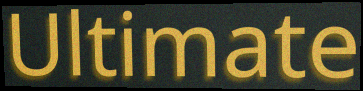
Ultimate